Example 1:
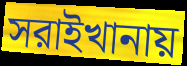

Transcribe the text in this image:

সরাইখানায়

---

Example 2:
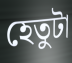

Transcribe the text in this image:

হেতুটা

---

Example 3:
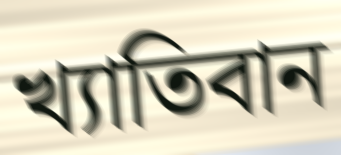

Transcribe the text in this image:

খ্যাতিবান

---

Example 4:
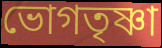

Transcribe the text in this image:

ভোগতৃষ্ণা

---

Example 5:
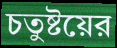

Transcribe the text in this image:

চতুষ্টয়ের